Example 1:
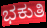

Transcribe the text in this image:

ಭಕುತಿ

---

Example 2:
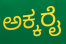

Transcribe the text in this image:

ಅಕ್ಕರೈ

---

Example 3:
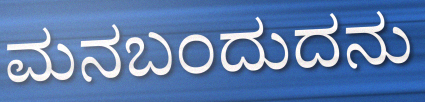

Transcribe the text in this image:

ಮನಬಂದುದನು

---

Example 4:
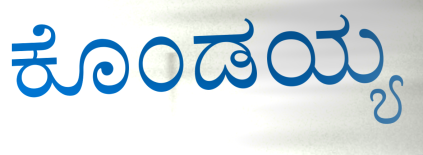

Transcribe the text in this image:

ಕೊಂಡಯ್ಯ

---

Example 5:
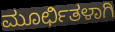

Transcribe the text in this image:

ಮೂರ್ಛಿತಳಾಗಿ